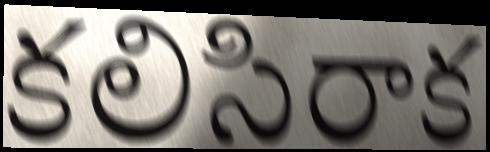
కలిసిరాక